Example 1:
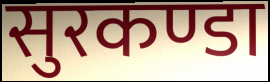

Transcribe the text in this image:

सुरकण्डा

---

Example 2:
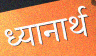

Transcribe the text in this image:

ध्यानार्थ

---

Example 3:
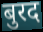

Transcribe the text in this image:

बुरद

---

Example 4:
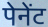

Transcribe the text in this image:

पेनेंट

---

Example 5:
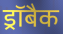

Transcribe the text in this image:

ड्रॉबैक